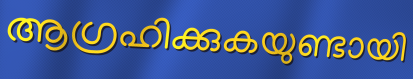
ആഗ്രഹിക്കുകയുണ്ടായി